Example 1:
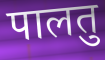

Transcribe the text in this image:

पालतु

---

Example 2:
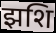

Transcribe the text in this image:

झशि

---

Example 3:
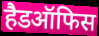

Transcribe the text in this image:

हैडऑफिस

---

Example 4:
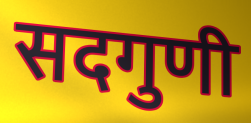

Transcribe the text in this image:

सदगुणी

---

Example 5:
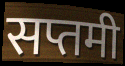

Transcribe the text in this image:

सप्तमी